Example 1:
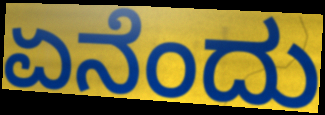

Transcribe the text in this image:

ಏನೆಂದು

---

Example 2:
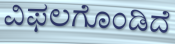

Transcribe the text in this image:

ವಿಫಲಗೊಂಡಿದೆ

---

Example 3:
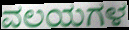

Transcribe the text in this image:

ವಲಯಗಳ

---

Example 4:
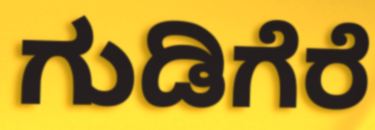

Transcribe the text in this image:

ಗುಡಿಗೆರೆ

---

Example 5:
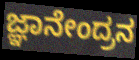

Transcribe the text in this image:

ಜ್ಞಾನೇಂದ್ರನ